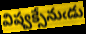
విష్వక్సేనుఁడు